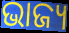
ଭାଜ୍ୟ